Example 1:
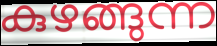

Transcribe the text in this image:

കുഴങ്ങുന്ന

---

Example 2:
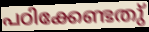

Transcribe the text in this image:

പഠിക്കേണ്ടതു്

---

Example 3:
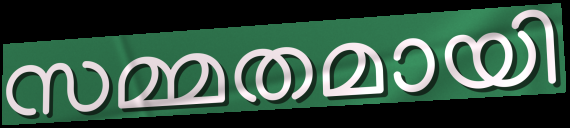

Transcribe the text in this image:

സമ്മതമായി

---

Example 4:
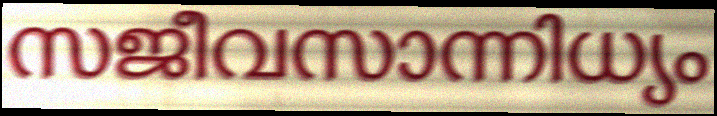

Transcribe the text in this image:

സജീവസാന്നിധ്യം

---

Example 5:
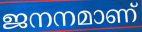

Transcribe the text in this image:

ജനനമാണ്